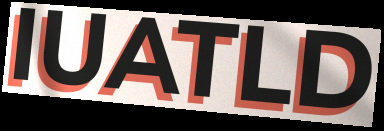
IUATLD